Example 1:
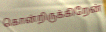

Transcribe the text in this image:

கொன்றிருக்கிறேன்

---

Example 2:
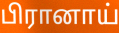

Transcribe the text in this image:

பிரானாய்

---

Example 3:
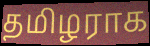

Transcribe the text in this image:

தமிழராக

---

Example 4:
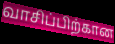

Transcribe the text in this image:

வாசிப்பிற்கான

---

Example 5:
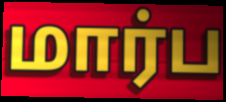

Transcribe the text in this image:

மார்ப